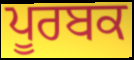
ਪੂਰਬਕ